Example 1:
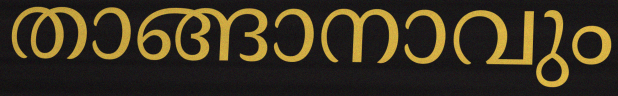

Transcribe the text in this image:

താങ്ങാനാവും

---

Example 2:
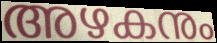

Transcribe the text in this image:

അഴകനും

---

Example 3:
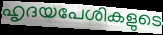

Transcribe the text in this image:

ഹൃദയപേശികളുടെ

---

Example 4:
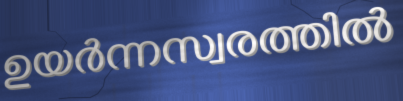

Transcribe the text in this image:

ഉയർന്നസ്വരത്തിൽ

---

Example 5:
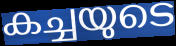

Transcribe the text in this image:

കച്ചയുടെ